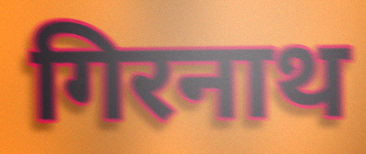
गिरनाथ